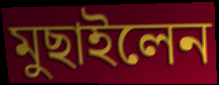
মুছাইলেন